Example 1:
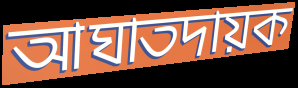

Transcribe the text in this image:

আঘাতদায়ক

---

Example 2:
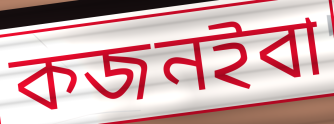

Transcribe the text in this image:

কজনইবা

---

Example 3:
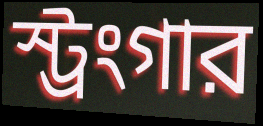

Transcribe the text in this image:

স্ট্রংগার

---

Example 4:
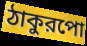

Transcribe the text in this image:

ঠাকুরপো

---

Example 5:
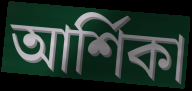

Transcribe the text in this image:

আর্শিকা